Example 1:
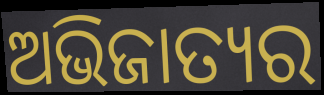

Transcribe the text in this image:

ଅଭିଜାତ୍ୟର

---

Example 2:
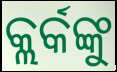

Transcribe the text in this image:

କ୍ଲର୍କଙ୍କୁ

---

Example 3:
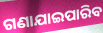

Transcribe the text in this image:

ଗଣାଯାଇପାରିବ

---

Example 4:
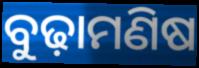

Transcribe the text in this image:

ବୁଢ଼ାମଣିଷ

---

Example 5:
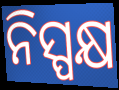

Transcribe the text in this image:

ନିସ୍ପକ୍ଷ